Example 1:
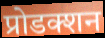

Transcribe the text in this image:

प्रोडक्‍शन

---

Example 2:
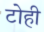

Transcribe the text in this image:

टोही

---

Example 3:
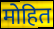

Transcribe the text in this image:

मोहित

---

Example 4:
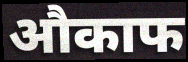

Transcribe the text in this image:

औकाफ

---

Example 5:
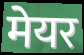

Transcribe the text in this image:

मेयर